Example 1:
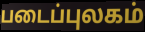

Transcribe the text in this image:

படைப்புலகம்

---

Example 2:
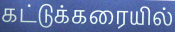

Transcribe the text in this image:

கட்டுக்கரையில்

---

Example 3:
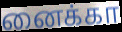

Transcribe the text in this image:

னைக்கா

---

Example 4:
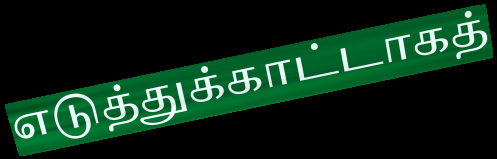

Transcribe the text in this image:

எடுத்துக்காட்டாகத்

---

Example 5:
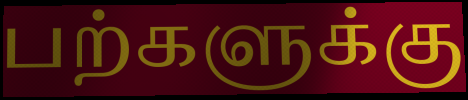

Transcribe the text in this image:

பற்களுக்கு